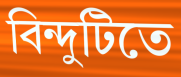
বিন্দুটিতে